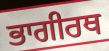
ਭਾਗੀਰਥ